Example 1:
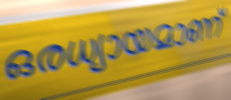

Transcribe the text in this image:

ഒരധ്യായമാണ്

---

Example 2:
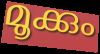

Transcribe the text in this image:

മൂക്കും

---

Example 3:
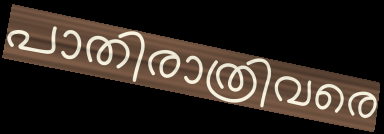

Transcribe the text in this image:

പാതിരാത്രിവരെ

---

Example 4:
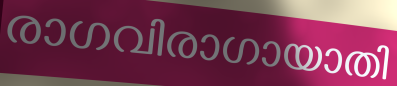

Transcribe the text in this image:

രാഗവിരാഗായാതി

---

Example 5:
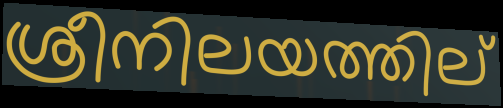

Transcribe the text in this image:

ശ്രീനിലയത്തില്